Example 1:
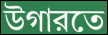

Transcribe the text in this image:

উগারতে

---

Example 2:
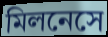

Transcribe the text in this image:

মিলনেসে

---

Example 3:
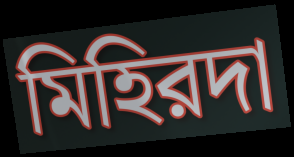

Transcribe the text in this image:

মিহিরদা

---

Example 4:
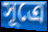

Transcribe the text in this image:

সূত্রে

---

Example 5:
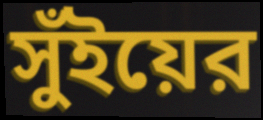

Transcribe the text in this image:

সুঁইয়ের